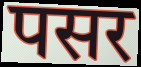
पसर